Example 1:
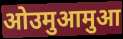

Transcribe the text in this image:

ओउमुआमुआ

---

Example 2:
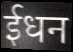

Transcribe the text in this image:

ईधन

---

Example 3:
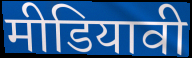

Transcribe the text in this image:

मीडियावी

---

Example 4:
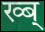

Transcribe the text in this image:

ख्ब्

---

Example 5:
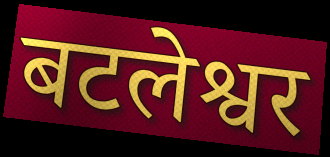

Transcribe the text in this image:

बटलेश्वर